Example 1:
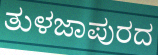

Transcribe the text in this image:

ತುಳಜಾಪುರದ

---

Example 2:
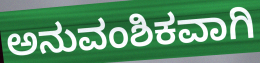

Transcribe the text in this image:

ಅನುವಂಶಿಕವಾಗಿ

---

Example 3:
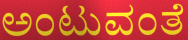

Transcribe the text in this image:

ಅಂಟುವಂತೆ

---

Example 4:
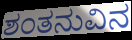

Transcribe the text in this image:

ಶಂತನುವಿನ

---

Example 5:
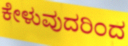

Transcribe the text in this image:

ಕೇಳುವುದರಿಂದ